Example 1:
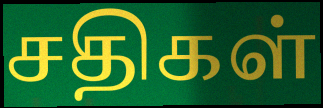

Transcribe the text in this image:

சதிகள்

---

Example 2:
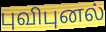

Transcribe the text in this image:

புவிபுனல்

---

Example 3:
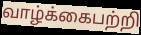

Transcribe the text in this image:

வாழ்க்கைபற்றி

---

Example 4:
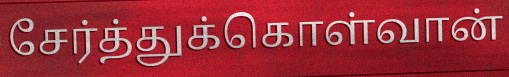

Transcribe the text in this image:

சேர்த்துக்கொள்வான்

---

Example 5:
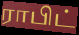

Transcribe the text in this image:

ராபிட்